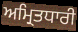
ਅਮ੍ਰਿਤਧਾਰੀ